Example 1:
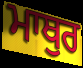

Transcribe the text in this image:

ਮਾਥੁਰ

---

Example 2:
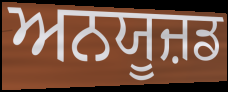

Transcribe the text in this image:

ਅਨਯੂਜ਼ਡ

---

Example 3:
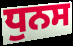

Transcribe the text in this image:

ਧੁਨਸ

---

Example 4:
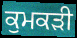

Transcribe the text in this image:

ਕੁਮਕੜੀ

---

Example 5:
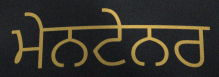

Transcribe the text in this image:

ਮੇਨਟੇਨਰ